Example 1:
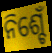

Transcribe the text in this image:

ନିଶ୍ଚେଁ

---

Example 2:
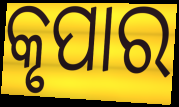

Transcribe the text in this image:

କୃପାର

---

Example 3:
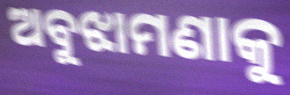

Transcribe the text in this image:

ଅବୁଝାମଣାକୁ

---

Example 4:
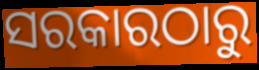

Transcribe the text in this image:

ସରକାରଠାରୁ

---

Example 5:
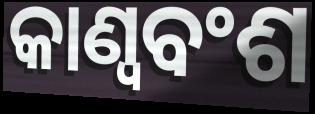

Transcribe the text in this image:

କାଣ୍ୱବଂଶ